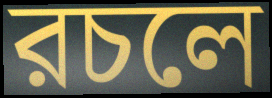
রচলে